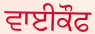
ਵਾਈਕੌਫ